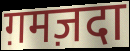
ग़मज़दा